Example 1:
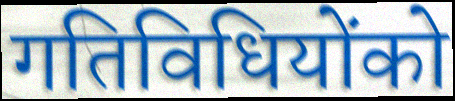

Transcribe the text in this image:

गतिविधियोंको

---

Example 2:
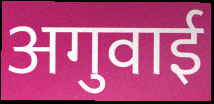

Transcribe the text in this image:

अगुवाई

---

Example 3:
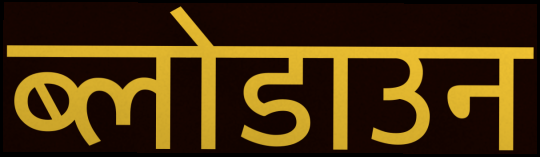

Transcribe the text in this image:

ब्लोडाउन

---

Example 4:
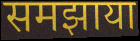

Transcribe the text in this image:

समझाया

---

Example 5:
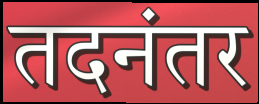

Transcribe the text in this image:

तदनंतर